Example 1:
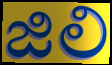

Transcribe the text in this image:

జిలి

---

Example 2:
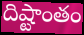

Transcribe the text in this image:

దిష్టాంతం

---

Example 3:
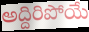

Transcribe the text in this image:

అద్దిరిపోయే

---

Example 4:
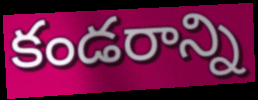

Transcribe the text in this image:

కండరాన్ని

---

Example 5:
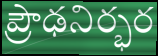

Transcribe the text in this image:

ప్రౌఢనిర్భర